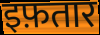
इफ़तार